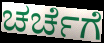
ಚರ್ಚೆಗೆ